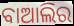
ବାଆଲିର